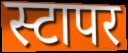
स्टापर